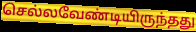
செல்லவேண்டியிருந்தது